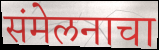
संमेलनाचा